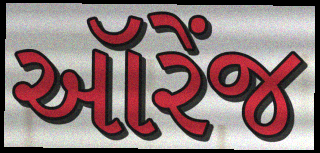
ઑરેંજ